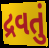
દ્રવતું